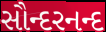
સૌન્દરનન્દ